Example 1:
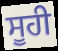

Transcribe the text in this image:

ਸੂਹੀ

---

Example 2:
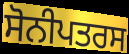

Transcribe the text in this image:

ਸੋਨੀਪਤਰਸ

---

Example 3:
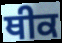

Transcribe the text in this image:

ਥੀਕ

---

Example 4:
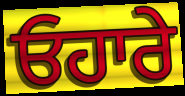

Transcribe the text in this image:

ਓਹਾਰੇ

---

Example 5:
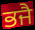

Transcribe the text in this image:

ਭਜੈ